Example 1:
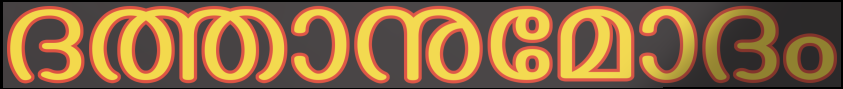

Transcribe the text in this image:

ദത്താനുമോദം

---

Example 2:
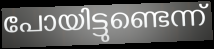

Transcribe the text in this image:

പോയിട്ടുണ്ടെന്ന്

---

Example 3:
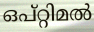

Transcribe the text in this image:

ഒപ്റ്റിമൽ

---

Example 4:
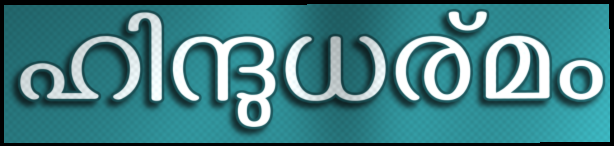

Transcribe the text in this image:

ഹിന്ദുധര്മം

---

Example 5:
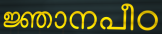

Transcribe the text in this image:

ജ്ഞാനപീഠ